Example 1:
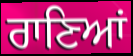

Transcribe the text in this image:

ਰਾਣਿਆਂ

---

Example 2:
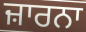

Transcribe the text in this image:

ਜ਼ਾਰਨਾ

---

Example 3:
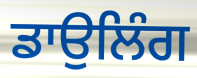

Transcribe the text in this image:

ਡਾਉਲਿੰਗ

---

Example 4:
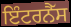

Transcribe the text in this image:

ਇੰਟਰਨੈੱਸ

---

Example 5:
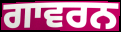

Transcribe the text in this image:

ਗਾਵਰਨ